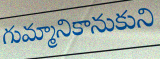
గుమ్మానికానుకుని